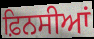
ਫ਼ਿਨਸੀਆਂ